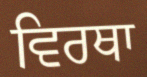
ਵਿਰਥਾ